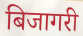
बिजागरी